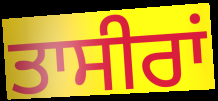
ਤਾਸੀਰਾਂ